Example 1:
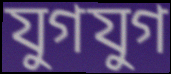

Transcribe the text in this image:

যুগযুগ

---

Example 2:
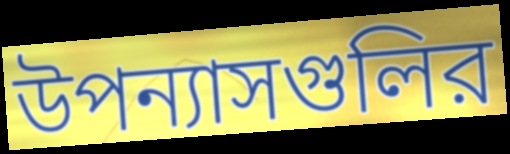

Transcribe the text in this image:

উপন্যাসগুলির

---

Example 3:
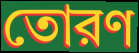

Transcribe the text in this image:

তোরণ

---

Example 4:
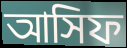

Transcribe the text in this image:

আসিফ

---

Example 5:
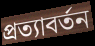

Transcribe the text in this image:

প্রত্যাবর্তন